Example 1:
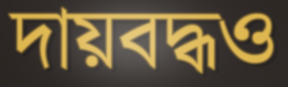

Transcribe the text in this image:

দায়বদ্ধও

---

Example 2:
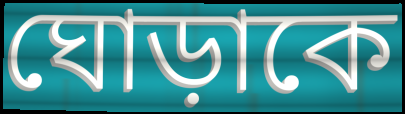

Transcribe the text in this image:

ঘোড়াকে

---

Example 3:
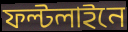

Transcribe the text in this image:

ফল্টলাইনে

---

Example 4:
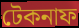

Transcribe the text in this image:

টেকনাফ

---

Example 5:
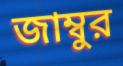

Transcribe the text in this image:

জাম্বুর